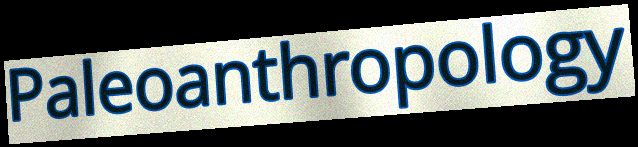
Paleoanthropology